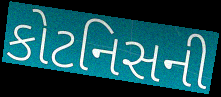
કોટનિસની